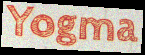
Yogma